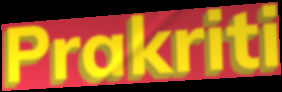
Prakriti